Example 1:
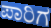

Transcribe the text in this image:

ಪಾರಿಗ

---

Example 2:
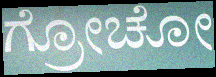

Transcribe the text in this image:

ಗ್ರೋಚೋ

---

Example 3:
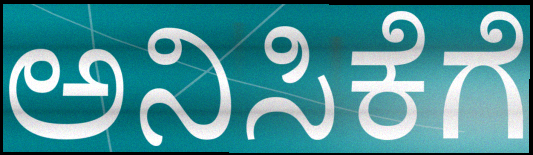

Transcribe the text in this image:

ಅನಿಸಿಕೆಗೆ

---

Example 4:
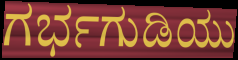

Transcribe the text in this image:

ಗರ್ಭಗುಡಿಯು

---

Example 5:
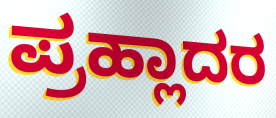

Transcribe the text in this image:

ಪ್ರಹ್ಲಾದರ